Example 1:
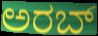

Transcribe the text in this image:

ಅರಬ್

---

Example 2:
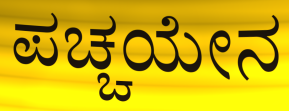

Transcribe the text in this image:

ಪಚ್ಚಯೇನ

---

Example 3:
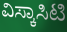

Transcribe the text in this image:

ವಿಸ್ಕಾಸಿಟಿ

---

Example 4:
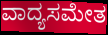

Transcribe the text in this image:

ವಾದ್ಯಸಮೇತ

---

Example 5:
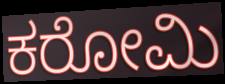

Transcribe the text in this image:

ಕರೋಮಿ